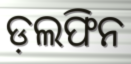
ଡ଼ଲଫିନ